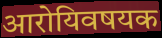
आरोयिवषयक